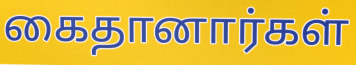
கைதானார்கள்